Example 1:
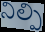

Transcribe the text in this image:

నిల్పి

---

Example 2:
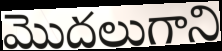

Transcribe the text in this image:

మొదలుగాని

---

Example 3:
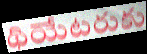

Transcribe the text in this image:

థియేటరుకు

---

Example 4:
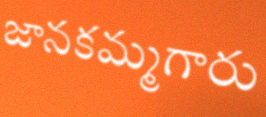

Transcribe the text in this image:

జానకమ్మగారు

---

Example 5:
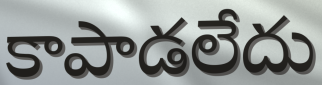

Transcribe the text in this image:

కాపాడలేదు